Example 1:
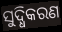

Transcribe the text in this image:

ସୁଦ୍ଧିକରଣ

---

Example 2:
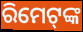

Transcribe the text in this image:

ରିମେଟ୍‍ଙ୍କ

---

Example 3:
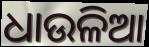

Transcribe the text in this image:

ଧାଉଳିଆ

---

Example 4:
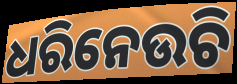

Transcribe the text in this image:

ଧରିନେଉଚି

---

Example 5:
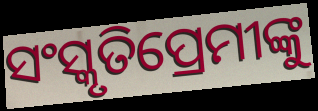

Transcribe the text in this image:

ସଂସ୍କୃତିପ୍ରେମୀଙ୍କୁ